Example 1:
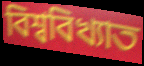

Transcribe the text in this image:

বিশ্ববিখ্যাত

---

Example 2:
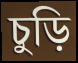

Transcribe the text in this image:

চুড়ি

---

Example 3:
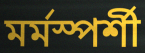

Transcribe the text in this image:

মৰ্মস্পৰ্শী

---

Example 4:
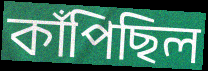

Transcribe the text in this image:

কাঁপিছিল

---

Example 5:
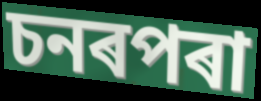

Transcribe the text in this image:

চনৰপৰা